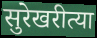
सुरेखरीत्या